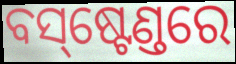
ବସ୍‌ଷ୍ଟେଣ୍ଡରେ